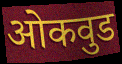
ओकवुड